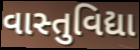
વાસ્તુવિદ્યા